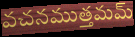
వచనముత్తమమ్